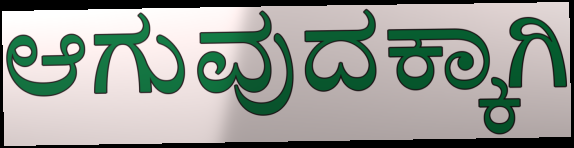
ಆಗುವುದಕ್ಕಾಗಿ